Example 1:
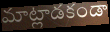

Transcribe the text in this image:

మాట్లాడకండా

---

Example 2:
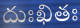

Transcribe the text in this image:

దుఃఖితః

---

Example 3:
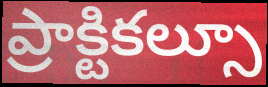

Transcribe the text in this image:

ప్రాక్టికల్సూ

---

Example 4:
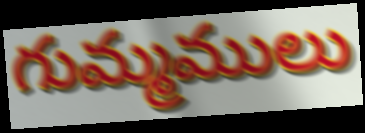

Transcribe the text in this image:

గుమ్మములు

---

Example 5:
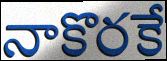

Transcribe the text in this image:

నాకొరకే